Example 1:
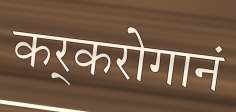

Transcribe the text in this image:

कर्करोगानं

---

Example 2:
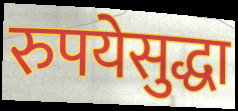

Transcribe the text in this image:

रुपयेसुद्धा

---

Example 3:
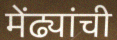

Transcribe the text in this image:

मेंढ्यांची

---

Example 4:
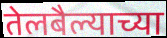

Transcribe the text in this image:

तेलबैल्याच्या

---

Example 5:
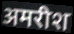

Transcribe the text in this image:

अमरीश